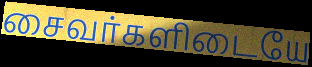
சைவர்களிடையே